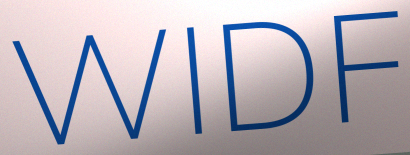
WIDF